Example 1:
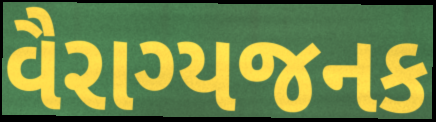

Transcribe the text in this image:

વૈરાગ્યજનક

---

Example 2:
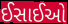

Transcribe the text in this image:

ઈસાઈઓ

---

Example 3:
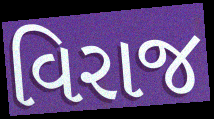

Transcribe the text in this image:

વિરાજ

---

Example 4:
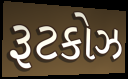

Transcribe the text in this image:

રૂટકોઝ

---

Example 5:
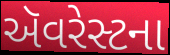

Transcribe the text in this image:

ઍૅવરેસ્ટના